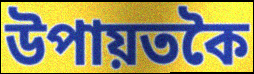
উপায়তকৈ